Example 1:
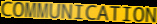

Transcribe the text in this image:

COMMUNICATION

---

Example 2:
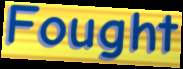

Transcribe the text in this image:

Fought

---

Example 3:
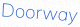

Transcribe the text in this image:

Doorway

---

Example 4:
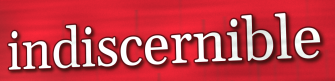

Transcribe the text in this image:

indiscernible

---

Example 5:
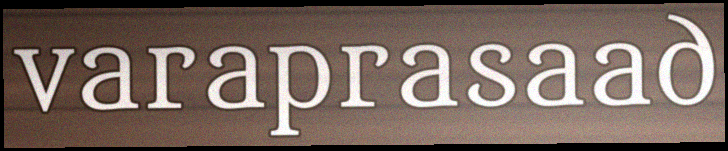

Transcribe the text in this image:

varaprasaad